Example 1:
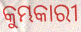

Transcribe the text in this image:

କୁମ୍ଭକାରୀ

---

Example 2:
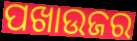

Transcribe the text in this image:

ପଖାଉଜର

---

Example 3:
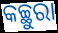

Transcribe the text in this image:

କଚ୍ଛୁରା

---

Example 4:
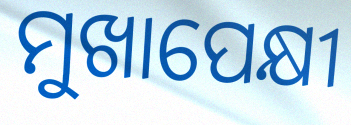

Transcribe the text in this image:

ମୁଖାପେକ୍ଷୀ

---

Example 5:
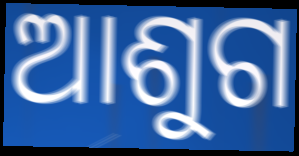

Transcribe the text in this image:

ଆଶୁଗ